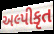
અલ્પીકૃત